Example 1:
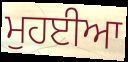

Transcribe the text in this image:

ਮੁਹਈਆ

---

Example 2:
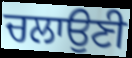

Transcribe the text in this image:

ਚਲਾਉਣੀ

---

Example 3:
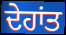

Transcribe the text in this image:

ਦੇਹਾਂਤ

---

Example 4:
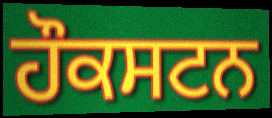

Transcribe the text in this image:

ਹੌਕਸਟਨ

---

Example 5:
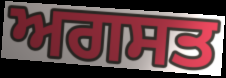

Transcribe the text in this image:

ਅਗਸਤ